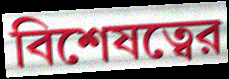
বিশেষত্বের